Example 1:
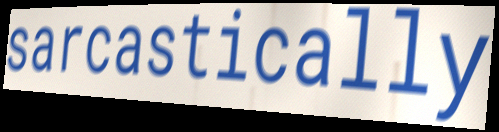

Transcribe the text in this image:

sarcastically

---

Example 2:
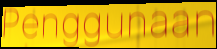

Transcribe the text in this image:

Penggunaan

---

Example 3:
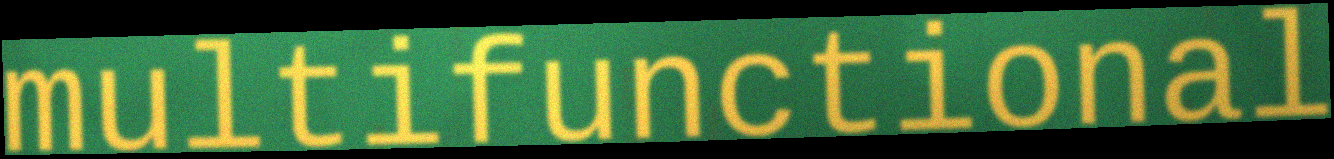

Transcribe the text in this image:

multifunctional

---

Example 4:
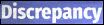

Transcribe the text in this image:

Discrepancy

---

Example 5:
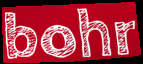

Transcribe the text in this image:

bohr